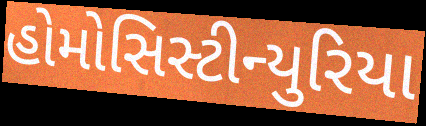
હોમોસિસ્ટીન્યુરિયા